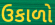
ઉકાળો